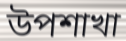
উপশাখা